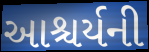
આશ્ચર્યની